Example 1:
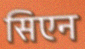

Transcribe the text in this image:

सिएन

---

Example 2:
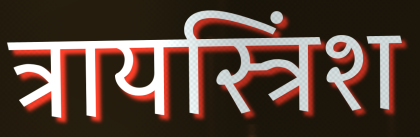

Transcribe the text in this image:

त्रायस्त्रिंश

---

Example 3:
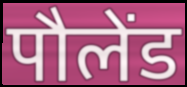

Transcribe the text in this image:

पौलेंड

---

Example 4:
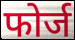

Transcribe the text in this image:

फोर्ज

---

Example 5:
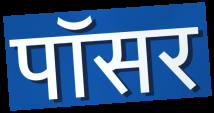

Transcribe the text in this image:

पॉसर